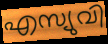
എസ്യുവി